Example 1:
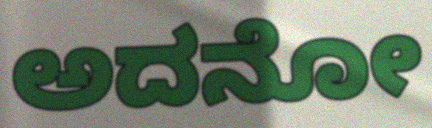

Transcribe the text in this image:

ಅದನೋ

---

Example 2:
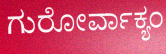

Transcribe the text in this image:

ಗುರೋರ್ವಾಕ್ಯಂ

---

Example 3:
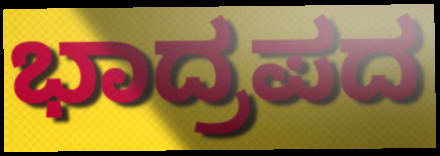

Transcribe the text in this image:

ಭಾದ್ರಪದ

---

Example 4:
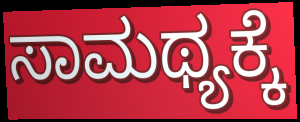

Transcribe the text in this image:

ಸಾಮಥ್ಯಕ್ಕೆ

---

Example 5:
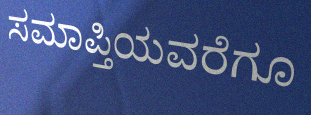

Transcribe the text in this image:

ಸಮಾಪ್ತಿಯವರೆಗೂ